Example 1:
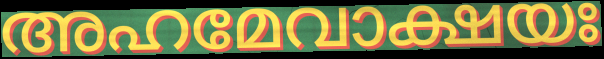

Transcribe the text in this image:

അഹമേവാക്ഷയഃ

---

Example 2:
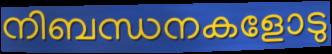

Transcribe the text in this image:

നിബന്ധനകളോടു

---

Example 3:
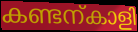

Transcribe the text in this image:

കണ്ടന്കാളി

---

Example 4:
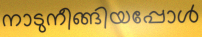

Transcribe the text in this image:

നാടുനീങ്ങിയപ്പോൾ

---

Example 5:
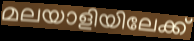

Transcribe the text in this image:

മലയാളിയിലേക്ക്